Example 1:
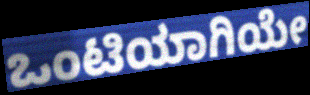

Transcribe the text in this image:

ಒಂಟಿಯಾಗಿಯೇ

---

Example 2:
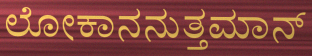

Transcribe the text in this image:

ಲೋಕಾನನುತ್ತಮಾನ್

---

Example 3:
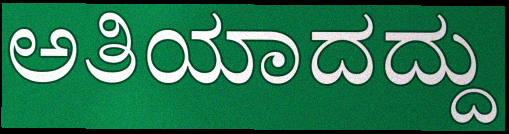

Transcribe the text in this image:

ಅತಿಯಾದದ್ದು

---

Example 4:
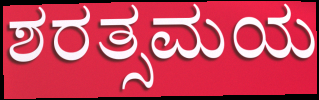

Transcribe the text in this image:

ಶರತ್ಸಮಯ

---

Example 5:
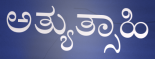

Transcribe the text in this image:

ಅತ್ಯುತ್ಸಾಹಿ